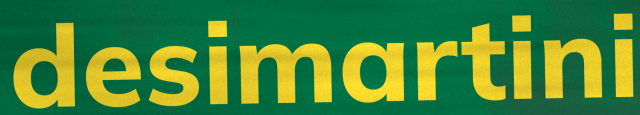
desimartini